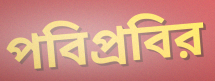
পবিপ্রবির